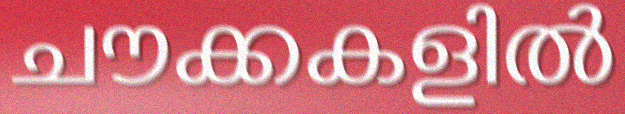
ചൗക്കകളിൽ